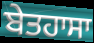
ਬੇਤਹਾਸਾ